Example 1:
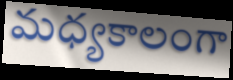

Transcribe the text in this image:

మధ్యకాలంగా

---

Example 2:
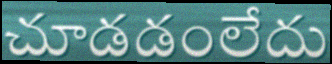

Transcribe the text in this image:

చూడడంలేదు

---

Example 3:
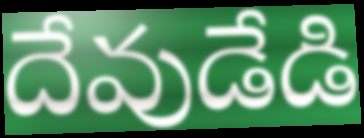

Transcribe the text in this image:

దేవుడేడి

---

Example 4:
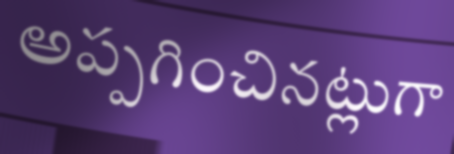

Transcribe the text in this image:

అప్పగించినట్లుగా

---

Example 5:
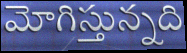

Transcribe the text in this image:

మోగిస్తున్నది